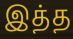
இத்த